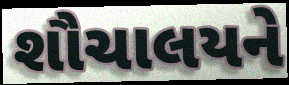
શૌચાલયને